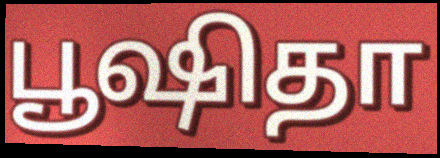
பூஷிதா